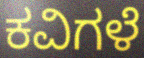
ಕವಿಗಳೆ